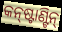
କନ୍‌ଷ୍ଟାଣ୍ଟିନ୍